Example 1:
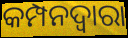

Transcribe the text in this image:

କମ୍ପନଦ୍ୱାରା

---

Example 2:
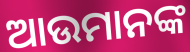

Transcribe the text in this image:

ଆଉମାନଙ୍କ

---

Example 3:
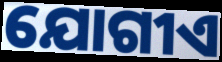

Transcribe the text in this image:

ଯୋଗୀଏ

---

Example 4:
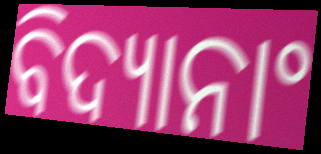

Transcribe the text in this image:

ବିଦ୍ୟାନାଂ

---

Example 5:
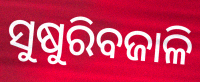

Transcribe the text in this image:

ସୁଷୁରିବଜାଳି